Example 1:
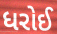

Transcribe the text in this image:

ધરોઈ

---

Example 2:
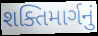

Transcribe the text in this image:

શક્તિમાર્ગનું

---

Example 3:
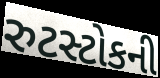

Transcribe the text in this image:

રુટસ્ટોકની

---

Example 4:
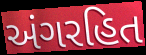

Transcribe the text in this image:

અંગરહિત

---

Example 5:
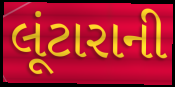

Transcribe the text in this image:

લૂંટારાની